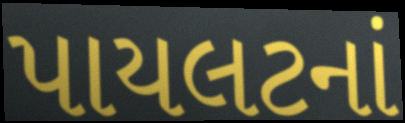
પાયલટનાં